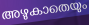
അഴുകാതെയും